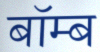
बॉम्ब